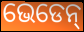
ଭେଡେନ୍